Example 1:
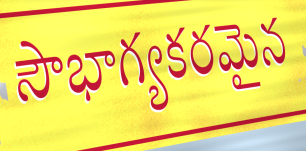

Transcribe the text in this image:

సౌభాగ్యకరమైన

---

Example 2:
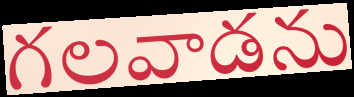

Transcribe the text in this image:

గలవాడను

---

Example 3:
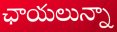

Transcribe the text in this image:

ఛాయలున్నా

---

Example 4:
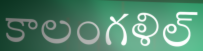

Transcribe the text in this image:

కాలంగళిల్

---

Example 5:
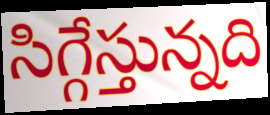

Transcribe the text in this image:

సిగ్గేస్తున్నది